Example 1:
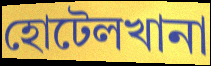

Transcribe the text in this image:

হোটেলখানা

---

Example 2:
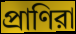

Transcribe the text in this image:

প্রাণিরা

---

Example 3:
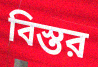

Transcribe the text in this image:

বিস্তর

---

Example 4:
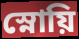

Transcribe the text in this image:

স্নোয়ি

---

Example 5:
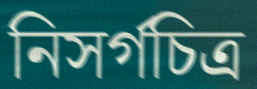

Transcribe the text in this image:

নিসর্গচিত্র